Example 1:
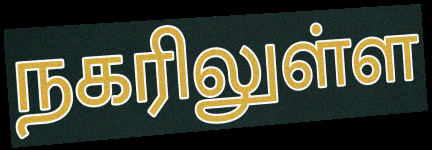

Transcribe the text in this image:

நகரிலுள்ள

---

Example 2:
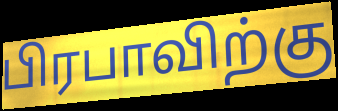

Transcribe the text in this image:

பிரபாவிற்கு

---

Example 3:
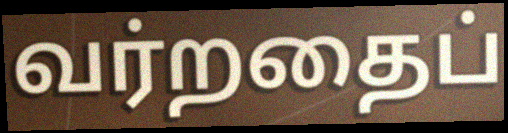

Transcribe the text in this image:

வர்றதைப்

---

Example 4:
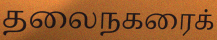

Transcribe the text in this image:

தலைநகரைக்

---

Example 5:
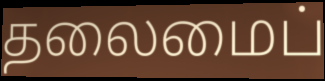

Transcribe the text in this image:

தலைமைப்